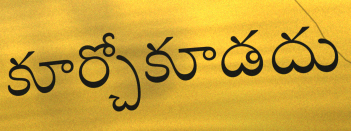
కూర్చోకూడదు